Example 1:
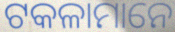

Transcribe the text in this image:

ଟକଳାମାନେ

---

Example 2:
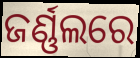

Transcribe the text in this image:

ଜର୍ଣ୍ଣଲରେ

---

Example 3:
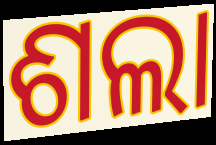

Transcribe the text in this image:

ଶଲା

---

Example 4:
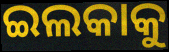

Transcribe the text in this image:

ଇଲକାକୁ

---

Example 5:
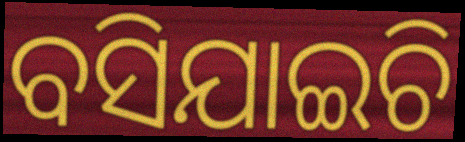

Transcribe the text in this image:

ବସିଯାଇଚି